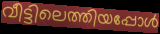
വീട്ടിലെത്തിയപ്പോൾ